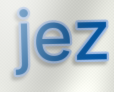
jez